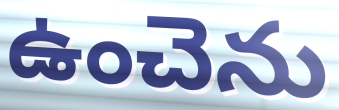
ఉంచెను